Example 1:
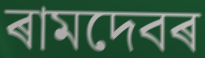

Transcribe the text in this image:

ৰামদেবৰ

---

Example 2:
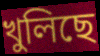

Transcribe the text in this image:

খুলিছে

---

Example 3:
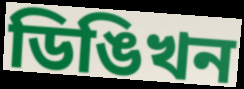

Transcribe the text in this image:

ডিঙিখন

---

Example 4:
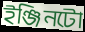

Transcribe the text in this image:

ইঞ্জিনটো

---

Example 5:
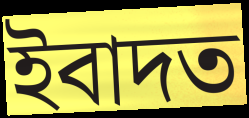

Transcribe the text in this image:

ইবাদত